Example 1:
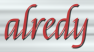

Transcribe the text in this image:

alredy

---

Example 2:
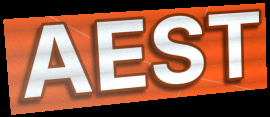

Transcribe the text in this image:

AEST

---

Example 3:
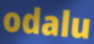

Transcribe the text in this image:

odalu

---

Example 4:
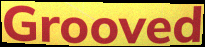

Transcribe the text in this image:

Grooved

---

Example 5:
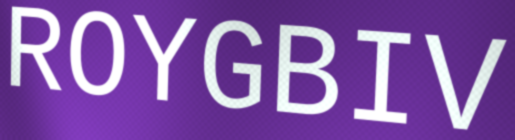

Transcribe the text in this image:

ROYGBIV